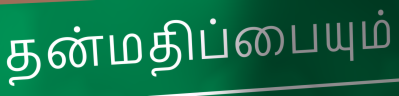
தன்மதிப்பையும்